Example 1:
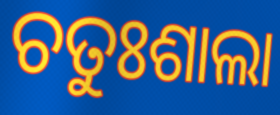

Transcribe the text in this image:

ଚତୁଃଶାଲା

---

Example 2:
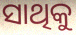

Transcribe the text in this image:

ସାଥିକୁ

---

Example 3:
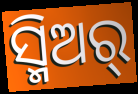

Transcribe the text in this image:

ସ୍ମିଅର୍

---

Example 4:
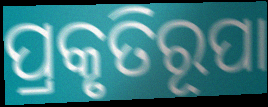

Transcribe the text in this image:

ପ୍ରକୃତିରୂପା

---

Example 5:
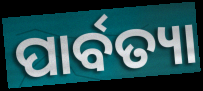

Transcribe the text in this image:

ପାର୍ବତ୍ୟା